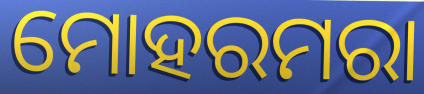
ମୋହରମରା